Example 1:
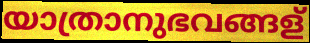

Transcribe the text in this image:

യാത്രാനുഭവങ്ങള്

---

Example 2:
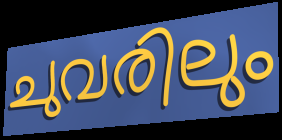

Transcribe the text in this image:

ചുവരിലും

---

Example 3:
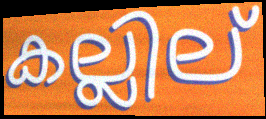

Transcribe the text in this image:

കല്ലില്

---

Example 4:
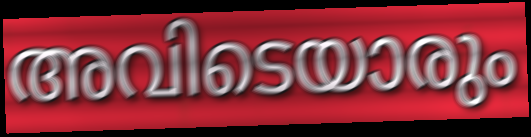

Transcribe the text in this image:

അവിടെയാരും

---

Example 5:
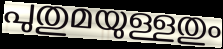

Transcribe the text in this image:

പുതുമയുള്ളതും